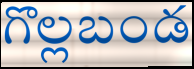
గొల్లబండ